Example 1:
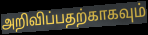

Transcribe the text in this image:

அறிவிப்பதற்காகவும்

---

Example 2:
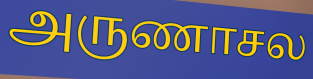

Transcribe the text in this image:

அருணாசல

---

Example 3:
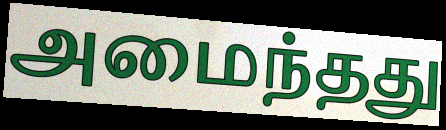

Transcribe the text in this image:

அமைந்தது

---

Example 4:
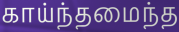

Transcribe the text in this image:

காய்ந்தமைந்த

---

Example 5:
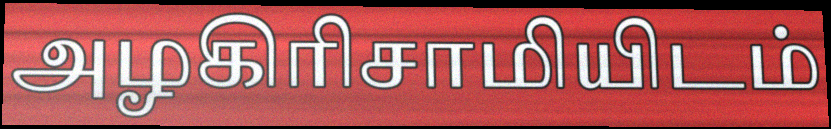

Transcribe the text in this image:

அழகிரிசாமியிடம்